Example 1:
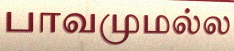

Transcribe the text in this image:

பாவமுமல்ல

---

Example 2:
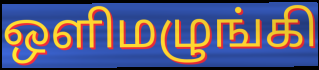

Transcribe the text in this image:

ஒளிமழுங்கி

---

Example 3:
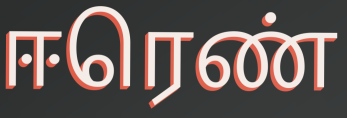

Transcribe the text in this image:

ஈரெண்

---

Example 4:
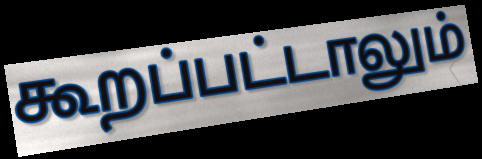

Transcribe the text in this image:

கூறப்பட்டாலும்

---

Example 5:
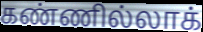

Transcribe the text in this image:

கண்ணில்லாக்